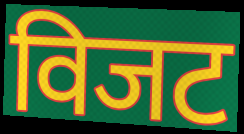
विजट